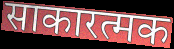
साकारत्मक